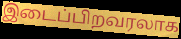
இடைப்பிறவரலாக